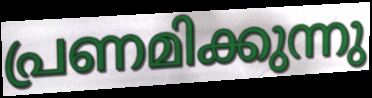
പ്രണമിക്കുന്നു